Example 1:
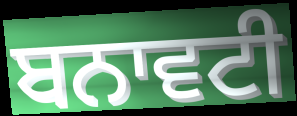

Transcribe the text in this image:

ਬਨਾਵਟੀ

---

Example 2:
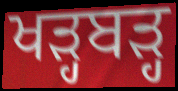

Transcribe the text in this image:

ਖੜ੍ਹਬੜ੍ਹ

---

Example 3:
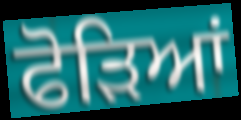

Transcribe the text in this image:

ਫੋੜਿਆਂ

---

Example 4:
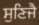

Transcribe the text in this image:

ਸੁਣਿਜੈ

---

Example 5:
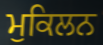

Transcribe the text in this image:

ਮੁਕਿਲਨ